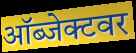
ऑब्जेक्टवर